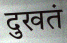
दुखतं